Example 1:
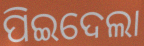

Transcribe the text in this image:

ପିଇଦେଲା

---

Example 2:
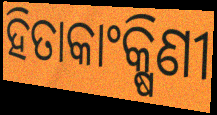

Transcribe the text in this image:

ହିତାକାଂକ୍ଷିଣୀ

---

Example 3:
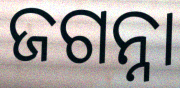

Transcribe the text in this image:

ଜଗନ୍ନା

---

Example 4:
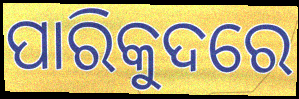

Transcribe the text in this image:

ପାରିକୁଦରେ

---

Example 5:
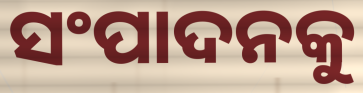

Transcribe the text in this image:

ସଂପାଦନକୁ